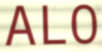
ALO